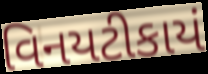
વિનયટીકાયં